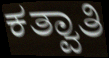
ಕತ್ವಾತಿ